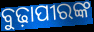
ବୁଢ଼ାପୀରଙ୍କ